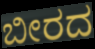
ಬೀರದ